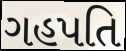
ગહપતિ